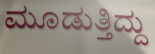
ಮೂಡುತ್ತಿದ್ದು